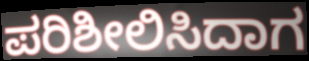
ಪರಿಶೀಲಿಸಿದಾಗ